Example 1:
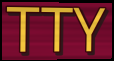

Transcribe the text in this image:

TTY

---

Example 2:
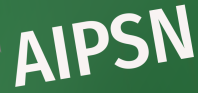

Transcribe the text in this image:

AIPSN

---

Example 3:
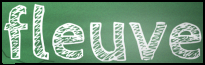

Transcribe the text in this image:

fleuve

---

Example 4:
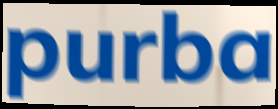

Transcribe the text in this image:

purba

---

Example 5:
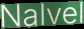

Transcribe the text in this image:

Nalvel